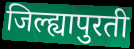
जिल्ह्यापुरती